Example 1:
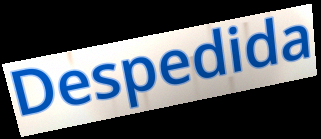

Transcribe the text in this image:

Despedida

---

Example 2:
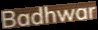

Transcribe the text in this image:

Badhwar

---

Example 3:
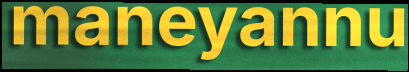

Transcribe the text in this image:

maneyannu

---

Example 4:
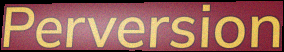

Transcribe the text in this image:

Perversion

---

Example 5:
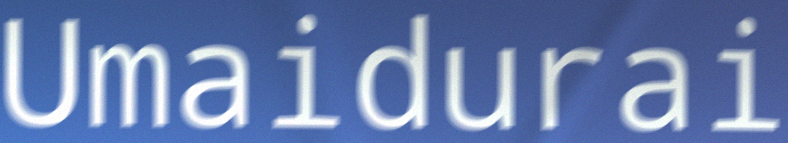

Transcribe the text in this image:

Umaidurai